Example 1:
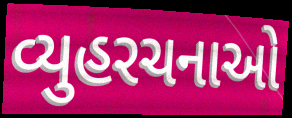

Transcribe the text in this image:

વ્યુહરચનાઓ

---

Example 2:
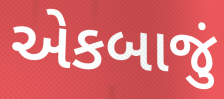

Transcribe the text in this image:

એકબાજું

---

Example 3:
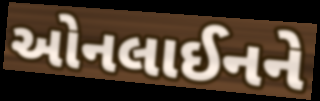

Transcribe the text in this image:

ઓનલાઈનને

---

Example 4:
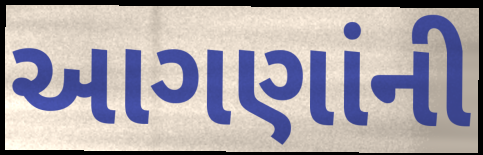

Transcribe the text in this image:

આગણાંની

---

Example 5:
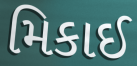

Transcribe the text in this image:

મિકાઈ